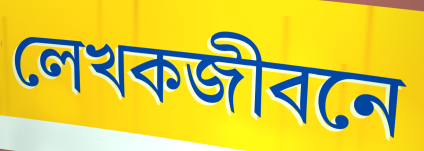
লেখকজীবনে